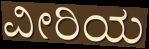
ವೀರಿಯ